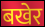
बखेर